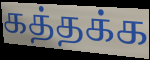
கத்தக்க